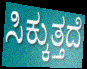
ಸಿಕ್ಕುತ್ತದೆ